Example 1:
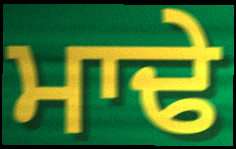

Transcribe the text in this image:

ਮਾਢੇ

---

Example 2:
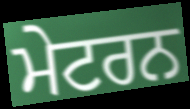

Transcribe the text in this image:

ਮੇਟਰਨ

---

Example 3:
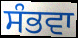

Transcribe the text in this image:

ਸੰਭਵਾ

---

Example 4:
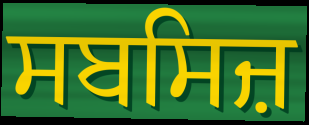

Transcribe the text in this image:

ਸਬਸਿਜ਼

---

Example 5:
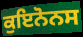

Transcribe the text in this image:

ਕੁਇਨੋਨਸ